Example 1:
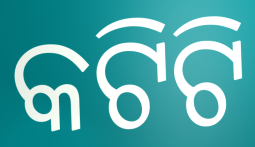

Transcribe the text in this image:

କଟିଟି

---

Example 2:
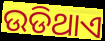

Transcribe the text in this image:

ଉଡିଥାଏ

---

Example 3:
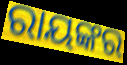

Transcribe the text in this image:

ରାୟଙ୍କର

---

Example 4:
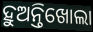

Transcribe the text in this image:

ହୁଅନ୍ତିଖୋଲା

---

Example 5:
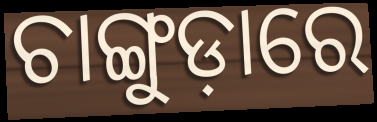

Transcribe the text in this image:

ଚାଙ୍ଗୁଡ଼ାରେ